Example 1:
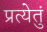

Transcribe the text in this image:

प्रत्येतुं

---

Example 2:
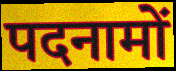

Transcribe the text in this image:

पदनामों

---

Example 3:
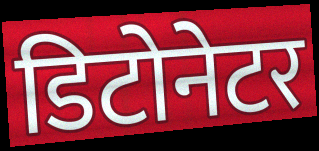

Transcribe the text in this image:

डिटोनेटर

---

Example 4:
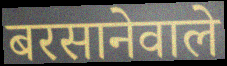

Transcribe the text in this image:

बरसानेवाले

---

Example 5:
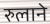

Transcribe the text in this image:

रुलाने